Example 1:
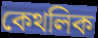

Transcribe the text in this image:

কেথলিক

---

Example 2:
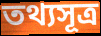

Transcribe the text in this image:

তথ্যসূত্ৰ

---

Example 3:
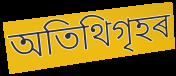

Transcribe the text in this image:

অতিথিগৃহৰ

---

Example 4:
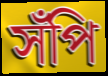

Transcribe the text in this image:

সঁপি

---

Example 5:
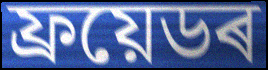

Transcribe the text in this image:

ফ্ৰয়েডৰ